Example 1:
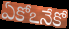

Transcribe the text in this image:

ఏకోఽనేకో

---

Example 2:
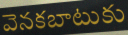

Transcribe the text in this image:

వెనకబాటుకు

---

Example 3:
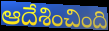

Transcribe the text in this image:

ఆదేశించింది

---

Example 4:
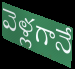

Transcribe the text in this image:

వెళ్లగానే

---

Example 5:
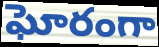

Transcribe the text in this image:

ఘోరంగా